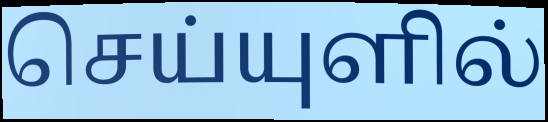
செய்யுளில்